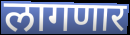
लागणार